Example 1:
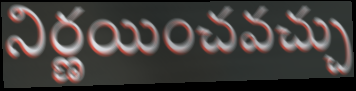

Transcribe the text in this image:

నిర్ణయించవచ్చు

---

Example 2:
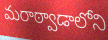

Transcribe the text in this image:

మరాఠ్వాడాలోని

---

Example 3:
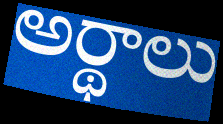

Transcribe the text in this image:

అర్థాలు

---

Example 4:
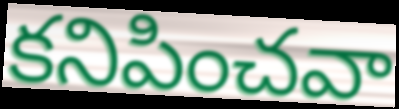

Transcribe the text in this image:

కనిపించవా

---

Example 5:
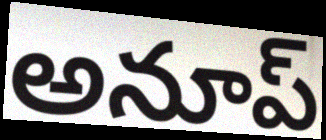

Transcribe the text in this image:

అనూప్